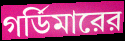
গর্ডিমারের